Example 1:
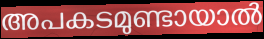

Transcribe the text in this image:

അപകടമുണ്ടായാൽ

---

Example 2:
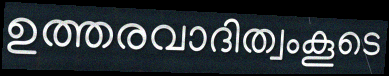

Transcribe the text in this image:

ഉത്തരവാദിത്വംകൂടെ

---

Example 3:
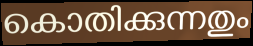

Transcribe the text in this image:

കൊതിക്കുന്നതും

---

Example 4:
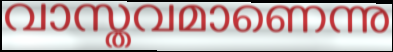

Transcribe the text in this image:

വാസ്തവമാണെന്നു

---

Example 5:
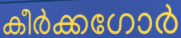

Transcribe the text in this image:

കീർക്കഗോർ